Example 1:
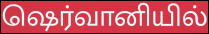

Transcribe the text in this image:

ஷெர்வானியில்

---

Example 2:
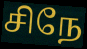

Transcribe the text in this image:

சிநே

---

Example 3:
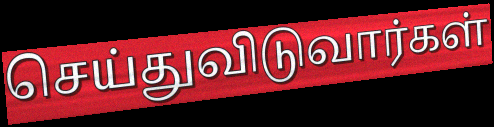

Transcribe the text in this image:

செய்துவிடுவார்கள்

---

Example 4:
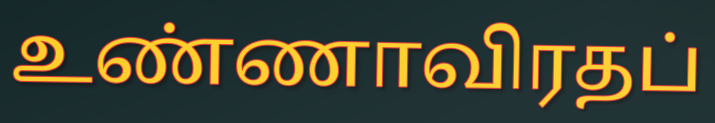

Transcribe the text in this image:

உண்ணாவிரதப்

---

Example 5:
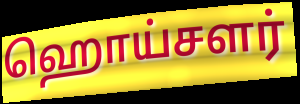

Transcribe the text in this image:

ஹொய்சளர்